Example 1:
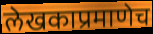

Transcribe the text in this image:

लेखकाप्रमाणेच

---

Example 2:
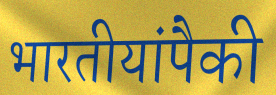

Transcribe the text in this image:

भारतीयांपैकी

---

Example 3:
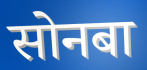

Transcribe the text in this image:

सोनबा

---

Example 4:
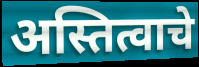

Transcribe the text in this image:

अस्तित्वाचे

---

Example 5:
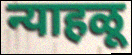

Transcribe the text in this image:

न्याहळू